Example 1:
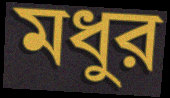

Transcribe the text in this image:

মধুর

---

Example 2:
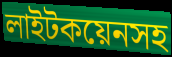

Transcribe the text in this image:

লাইটকয়েনসহ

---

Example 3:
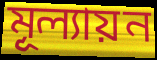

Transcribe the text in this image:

মূল্যায়ন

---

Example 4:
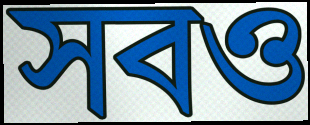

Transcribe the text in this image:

সবও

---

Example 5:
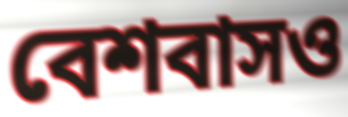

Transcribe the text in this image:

বেশবাসও